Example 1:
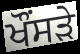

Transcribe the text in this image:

ਖੌਂਸੜੇ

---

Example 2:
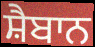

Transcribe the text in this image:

ਸ਼ੈਬਾਨ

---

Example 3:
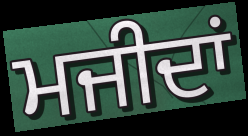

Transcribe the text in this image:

ਮਜੀਦਾਂ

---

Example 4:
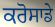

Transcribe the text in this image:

ਕਰੋਸਾਡੇ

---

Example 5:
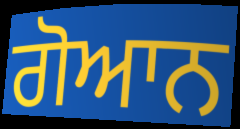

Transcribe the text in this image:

ਗੋਆਨ